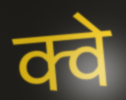
क्वे